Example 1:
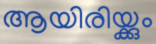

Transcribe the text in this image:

ആയിരിയ്ക്കും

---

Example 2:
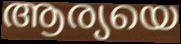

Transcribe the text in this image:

ആര്യയെ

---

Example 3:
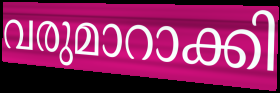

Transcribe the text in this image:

വരുമാറാക്കി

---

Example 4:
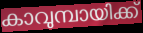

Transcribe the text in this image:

കാവുമ്പായിക്ക്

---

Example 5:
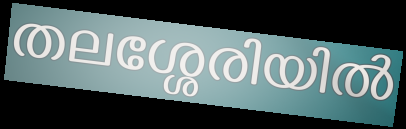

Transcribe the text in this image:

തലശ്ശേരിയിൽ